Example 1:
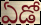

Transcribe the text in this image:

ఏడో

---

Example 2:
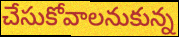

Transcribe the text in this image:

చేసుకోవాలనుకున్న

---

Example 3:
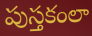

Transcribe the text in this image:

పుస్తకంలా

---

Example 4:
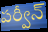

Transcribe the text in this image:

పర్వీన్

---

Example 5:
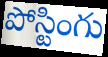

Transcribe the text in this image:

పోస్టింగు